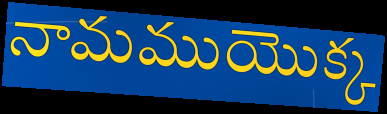
నామముయొక్క